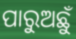
ପାରୁଅଛୁଁ